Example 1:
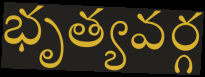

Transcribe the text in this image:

భృత్యవర్గ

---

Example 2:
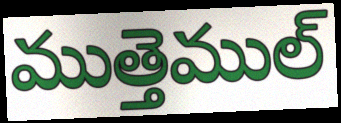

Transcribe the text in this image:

ముత్తెముల్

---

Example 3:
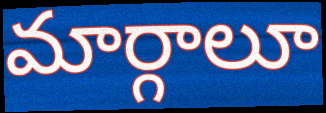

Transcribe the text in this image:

మార్గాలూ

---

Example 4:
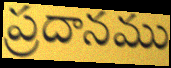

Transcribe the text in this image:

ప్రదానము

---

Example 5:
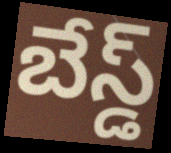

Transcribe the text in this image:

బేస్డ్